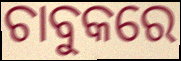
ଚାବୁକରେ